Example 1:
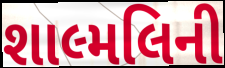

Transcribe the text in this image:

શાલ્મલિની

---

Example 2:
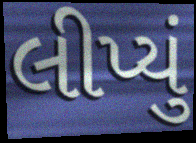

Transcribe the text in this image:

લીપ્યું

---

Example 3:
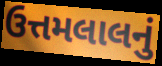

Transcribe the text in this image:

ઉત્તમલાલનું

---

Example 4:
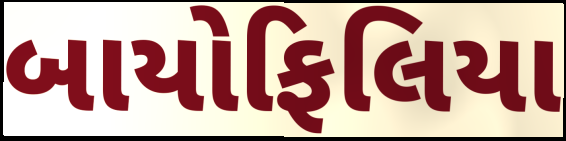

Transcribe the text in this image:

બાયોફિલિયા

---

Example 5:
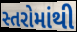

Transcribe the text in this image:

સ્તરોમાંથી